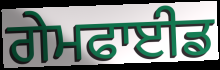
ਗੇਮਫਾਈਡ